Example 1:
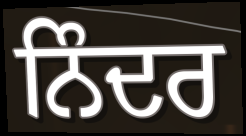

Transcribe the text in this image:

ਨਿੰਦਰ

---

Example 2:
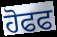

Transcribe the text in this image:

ਹੋਫਫ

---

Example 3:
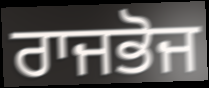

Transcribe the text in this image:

ਰਾਜਭੋਜ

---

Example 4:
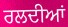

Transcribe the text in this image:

ਰਲਦੀਆਂ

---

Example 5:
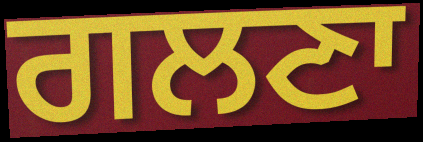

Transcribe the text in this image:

ਗਲਣਾ